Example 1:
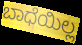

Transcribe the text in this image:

ಬಾಧೆಯಿಲ್ಲ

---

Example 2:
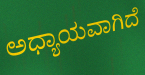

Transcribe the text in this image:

ಅಧ್ಯಾಯವಾಗಿದೆ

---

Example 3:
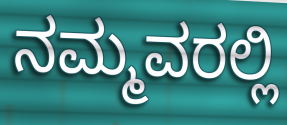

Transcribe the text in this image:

ನಮ್ಮವರಲ್ಲಿ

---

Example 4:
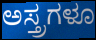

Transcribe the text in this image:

ಅಸ್ತ್ರಗಳೂ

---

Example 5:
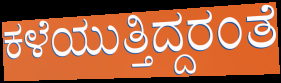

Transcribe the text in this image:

ಕಳೆಯುತ್ತಿದ್ದರಂತೆ